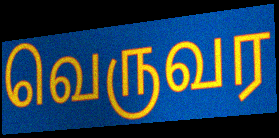
வெருவர